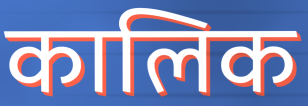
कालिक